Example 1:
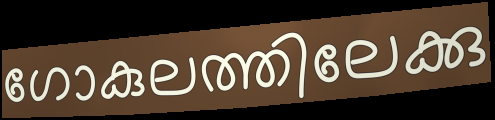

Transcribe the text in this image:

ഗോകുലത്തിലേക്കു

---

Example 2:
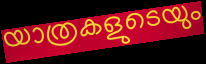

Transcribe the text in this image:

യാത്രകളുടെയും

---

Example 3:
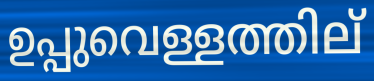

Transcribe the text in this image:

ഉപ്പുവെള്ളത്തില്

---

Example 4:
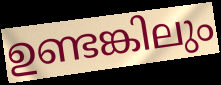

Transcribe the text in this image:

ഉണ്ടങ്കിലും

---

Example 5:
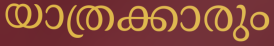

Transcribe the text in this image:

യാത്രക്കാരും